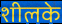
शीलके